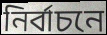
নির্বাচনে